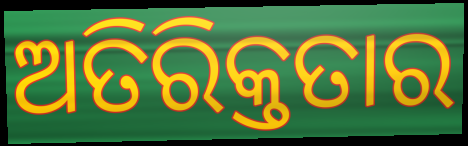
ଅତିରିକ୍ତତାର